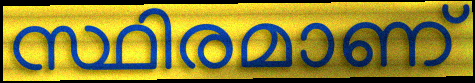
സ്ഥിരമാണ്